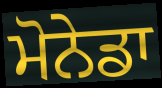
ਮੋਨੇਡਾ